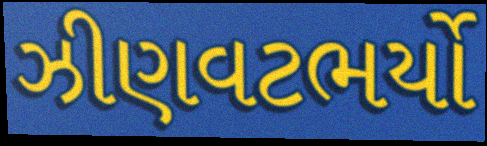
ઝીણવટભર્યો